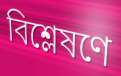
বিশ্লেষণে